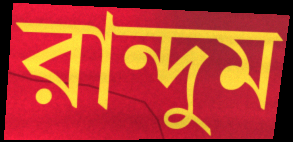
রান্দুম